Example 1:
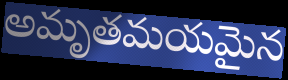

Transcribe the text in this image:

అమృతమయమైన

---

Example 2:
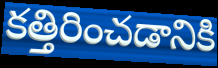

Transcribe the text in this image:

కత్తిరించడానికి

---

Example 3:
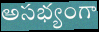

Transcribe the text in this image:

అసభ్యంగా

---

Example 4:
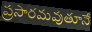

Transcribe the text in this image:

ప్రసారమవుతూనే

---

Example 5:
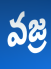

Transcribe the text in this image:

వజ్ర